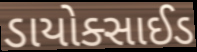
ડાયોક્સાઈડ